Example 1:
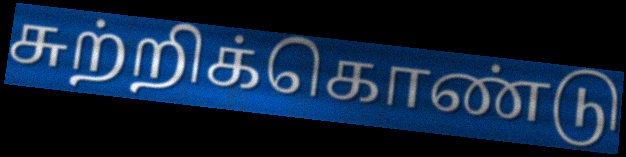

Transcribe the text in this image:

சுற்றிக்கொண்டு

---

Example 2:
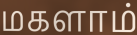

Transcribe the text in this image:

மகளாம்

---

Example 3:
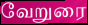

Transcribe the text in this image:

வேறுரை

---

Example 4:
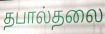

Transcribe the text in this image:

தபால்தலை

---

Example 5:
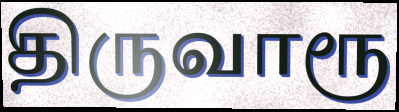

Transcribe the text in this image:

திருவாரூ